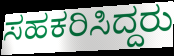
ಸಹಕರಿಸಿದ್ದರು